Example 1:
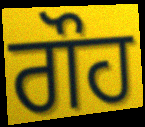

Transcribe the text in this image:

ਗੌਹ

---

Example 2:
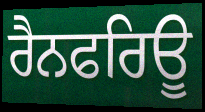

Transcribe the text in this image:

ਰੈਨਫਰਿਊ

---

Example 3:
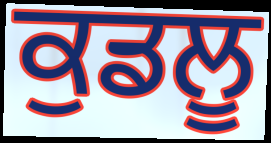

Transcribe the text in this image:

ਕੁਡਲੂ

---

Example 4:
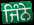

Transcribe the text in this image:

ਜਿੰਨੇ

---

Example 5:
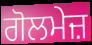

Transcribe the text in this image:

ਗੋਲਮੇਜ਼